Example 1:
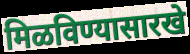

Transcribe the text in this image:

मिळविण्यासारखे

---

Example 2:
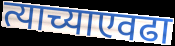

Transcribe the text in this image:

त्याच्याएवढा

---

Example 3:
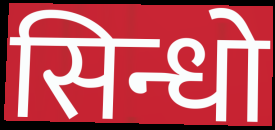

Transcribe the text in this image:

सिन्धो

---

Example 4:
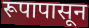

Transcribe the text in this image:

रूपापासून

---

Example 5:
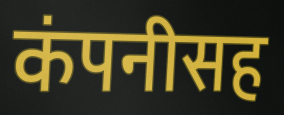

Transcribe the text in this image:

कंपनीसह